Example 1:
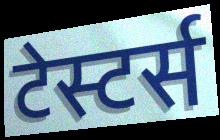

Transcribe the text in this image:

टेस्टर्स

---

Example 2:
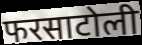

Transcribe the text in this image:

फरसाटोली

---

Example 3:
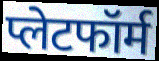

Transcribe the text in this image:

प्लेटफॉर्म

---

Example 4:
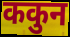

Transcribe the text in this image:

ककुन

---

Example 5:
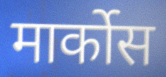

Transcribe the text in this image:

मार्कोस